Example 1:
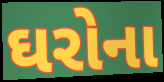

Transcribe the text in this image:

ઘરોના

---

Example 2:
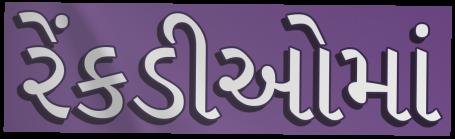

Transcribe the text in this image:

રેંકડીઓમાં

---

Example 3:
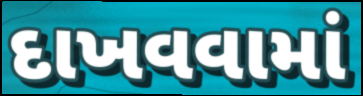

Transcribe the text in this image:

દાખવવામાં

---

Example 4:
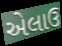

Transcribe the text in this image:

એલાઉ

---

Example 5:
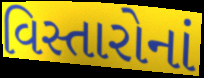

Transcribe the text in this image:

વિસ્તારોનાં